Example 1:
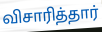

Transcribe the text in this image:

விசாரித்தார்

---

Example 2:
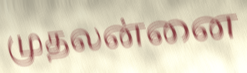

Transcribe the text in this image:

முதலன்னை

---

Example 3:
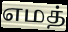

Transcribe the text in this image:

எமத்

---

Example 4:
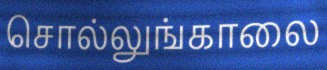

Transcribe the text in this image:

சொல்லுங்காலை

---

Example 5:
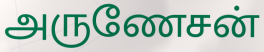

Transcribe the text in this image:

அருணேசன்